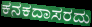
ಕನಕದಾಸರದು